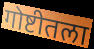
गोष्टीतला